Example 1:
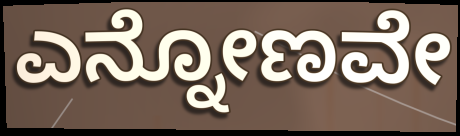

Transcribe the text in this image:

ಎನ್ನೋಣವೇ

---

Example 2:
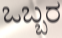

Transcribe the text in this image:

ಒಬ್ಬರ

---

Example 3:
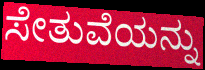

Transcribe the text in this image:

ಸೇತುವೆಯನ್ನು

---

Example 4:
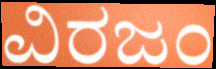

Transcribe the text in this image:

ವಿರಜಂ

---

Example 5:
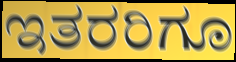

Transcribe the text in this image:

ಇತರರಿಗೂ